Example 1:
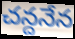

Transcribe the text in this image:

చన్దనేన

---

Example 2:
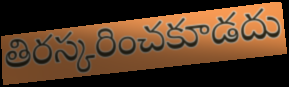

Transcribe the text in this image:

తిరస్కరించకూడదు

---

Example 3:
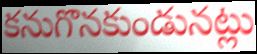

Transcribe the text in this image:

కనుగొనకుండునట్లు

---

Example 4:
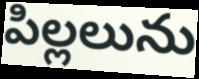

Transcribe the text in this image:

పిల్లలును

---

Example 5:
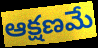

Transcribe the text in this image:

ఆక్షణమే